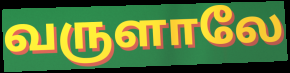
வருளாலே